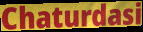
Chaturdasi